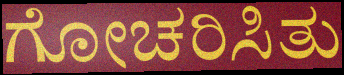
ಗೋಚರಿಸಿತು